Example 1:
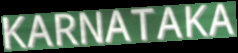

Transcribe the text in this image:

KARNATAKA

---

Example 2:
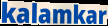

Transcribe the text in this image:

kalamkar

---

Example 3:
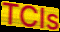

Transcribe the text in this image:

TCIs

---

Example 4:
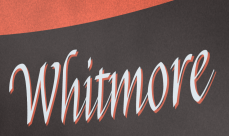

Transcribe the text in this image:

Whitmore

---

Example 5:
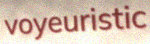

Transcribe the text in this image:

voyeuristic